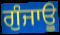
ਗੁੰਜਾਊ